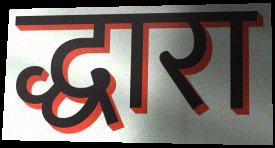
द्धारा